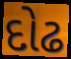
દોઢ